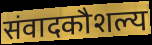
संवादकौशल्य